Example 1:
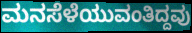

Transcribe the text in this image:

ಮನಸೆಳೆಯುವಂತಿದ್ದವು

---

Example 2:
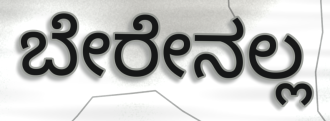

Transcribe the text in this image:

ಬೇರೇನಲ್ಲ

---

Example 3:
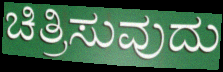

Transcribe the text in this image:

ಚಿತ್ರಿಸುವುದು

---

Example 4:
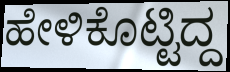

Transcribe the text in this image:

ಹೇಳಿಕೊಟ್ಟಿದ್ದ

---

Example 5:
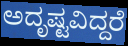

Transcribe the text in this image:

ಅದೃಷ್ಟವಿದ್ದರೆ